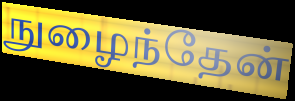
நுழைந்தேன்